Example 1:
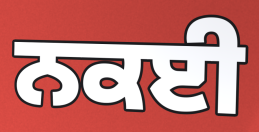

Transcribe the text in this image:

ਨਕਈ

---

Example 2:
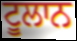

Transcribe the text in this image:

ਟੂਲਾਨ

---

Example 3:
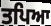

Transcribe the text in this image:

ਤਪਿਆ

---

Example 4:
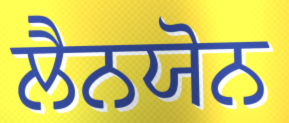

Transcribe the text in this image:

ਲੈਨਯੋਨ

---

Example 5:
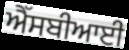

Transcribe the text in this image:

ਐੱਸਬੀਆਈ